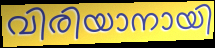
വിരിയാനായി